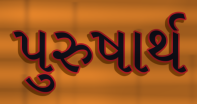
પુરુષાર્થ